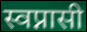
स्वप्नासी